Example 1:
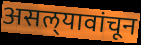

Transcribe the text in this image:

असल्यावांचून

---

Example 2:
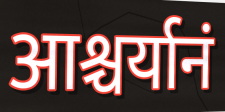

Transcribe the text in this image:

आश्चर्यानं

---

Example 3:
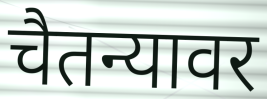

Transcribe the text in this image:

चैतन्यावर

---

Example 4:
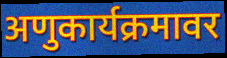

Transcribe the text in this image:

अणुकार्यक्रमावर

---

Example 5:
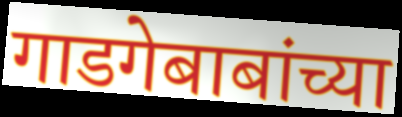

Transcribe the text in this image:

गाडगेबाबांच्या